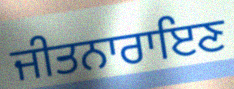
ਜੀਤਨਾਰਾਇਣ